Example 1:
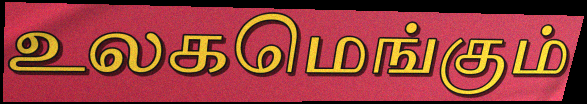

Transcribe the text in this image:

உலகமெங்கும்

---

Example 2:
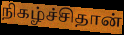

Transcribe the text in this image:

நிகழ்ச்சிதான்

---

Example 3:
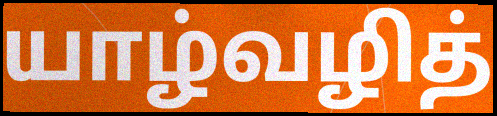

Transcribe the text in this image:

யாழ்வழித்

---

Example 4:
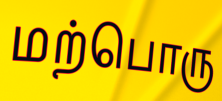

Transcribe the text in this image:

மற்பொரு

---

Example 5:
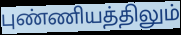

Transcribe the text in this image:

புண்ணியத்திலும்